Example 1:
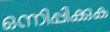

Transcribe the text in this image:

ഒന്നിപ്പിക്കുക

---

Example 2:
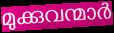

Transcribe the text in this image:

മുക്കുവന്മാർ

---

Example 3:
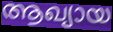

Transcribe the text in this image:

ആഖ്യായ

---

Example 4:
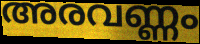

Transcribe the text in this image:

അരവണ്ണം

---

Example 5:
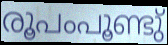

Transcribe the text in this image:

രൂപംപൂണ്ടു്